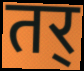
तर्